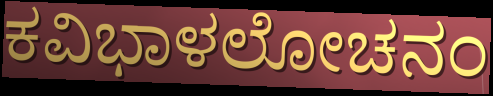
ಕವಿಭಾಳಲೋಚನಂ